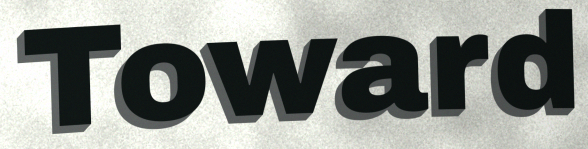
Toward